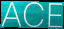
ACE